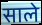
साले